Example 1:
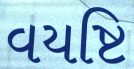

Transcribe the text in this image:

વયષ્ટિ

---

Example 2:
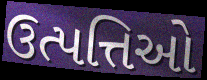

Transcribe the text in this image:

ઉત્પત્તિઓ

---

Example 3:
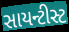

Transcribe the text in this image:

સાયન્ટીસ્ટ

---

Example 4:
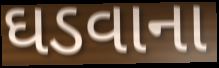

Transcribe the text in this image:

ઘડવાના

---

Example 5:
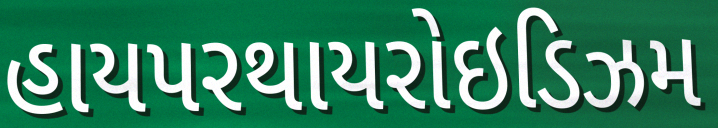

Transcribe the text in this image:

હાયપરથાયરોઇડિઝમ